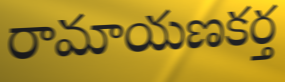
రామాయణకర్త